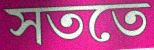
সততে